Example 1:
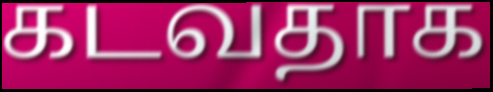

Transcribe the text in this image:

கடவதாக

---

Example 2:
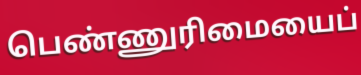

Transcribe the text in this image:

பெண்ணுரிமையைப்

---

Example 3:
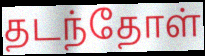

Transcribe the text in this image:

தடந்தோள்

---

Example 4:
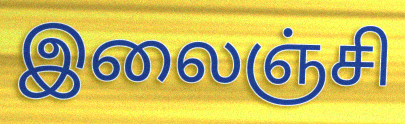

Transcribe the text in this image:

இலைஞ்சி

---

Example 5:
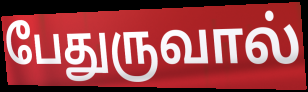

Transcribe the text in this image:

பேதுருவால்